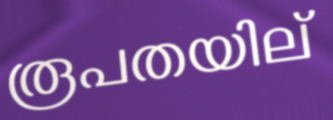
രൂപതയില്